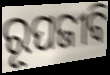
ରୂପଜୀବି